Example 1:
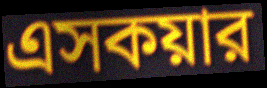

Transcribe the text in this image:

এসকয়ার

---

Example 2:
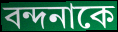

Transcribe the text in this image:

বন্দনাকে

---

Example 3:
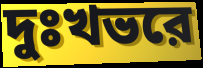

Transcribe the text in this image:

দুঃখভরে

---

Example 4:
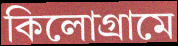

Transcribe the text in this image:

কিলোগ্রামে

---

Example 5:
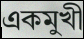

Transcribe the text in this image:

একমুখী